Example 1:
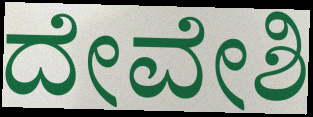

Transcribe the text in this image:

ದೇವೇಶಿ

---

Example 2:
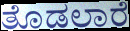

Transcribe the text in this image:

ತೊಡಲಾರೆ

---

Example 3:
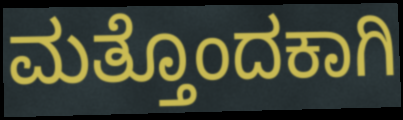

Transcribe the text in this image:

ಮತ್ತೊಂದಕಾಗಿ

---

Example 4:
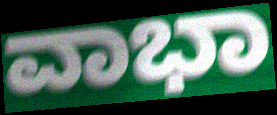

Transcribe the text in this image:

ವಾಭಾ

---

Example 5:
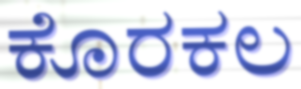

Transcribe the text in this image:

ಕೊರಕಲ